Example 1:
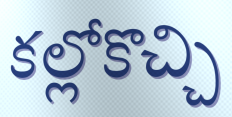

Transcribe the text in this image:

కల్లోకొచ్చి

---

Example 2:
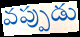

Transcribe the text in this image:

వప్పుడు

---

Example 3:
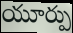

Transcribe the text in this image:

యూర్పు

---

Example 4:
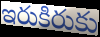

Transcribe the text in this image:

ఇరుకిరుకు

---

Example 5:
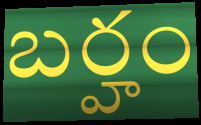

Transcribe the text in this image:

బర్హం